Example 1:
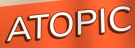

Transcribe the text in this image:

ATOPIC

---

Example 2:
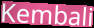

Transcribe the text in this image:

Kembali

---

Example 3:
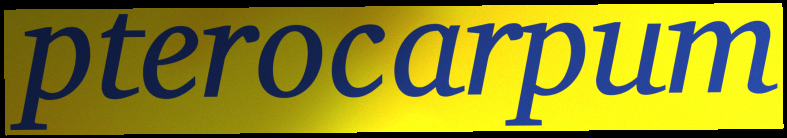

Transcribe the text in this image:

pterocarpum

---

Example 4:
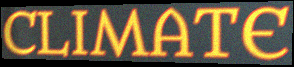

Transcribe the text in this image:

CLIMATE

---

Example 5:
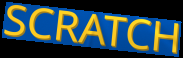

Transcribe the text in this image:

SCRATCH